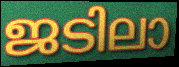
ജടിലാ